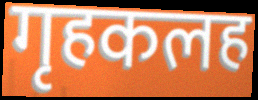
गृहकलह